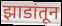
झाडांतून